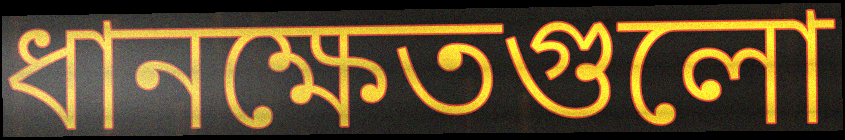
ধানক্ষেতগুলো